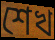
শেখ